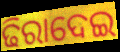
ଢିରାଦେଇ